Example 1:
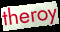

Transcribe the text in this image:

theroy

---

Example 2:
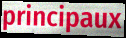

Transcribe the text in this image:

principaux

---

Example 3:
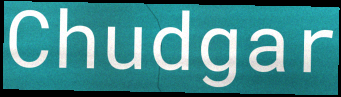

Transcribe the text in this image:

Chudgar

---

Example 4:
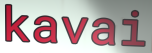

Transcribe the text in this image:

kavai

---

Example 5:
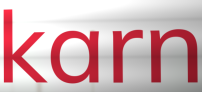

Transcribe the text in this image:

karn